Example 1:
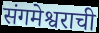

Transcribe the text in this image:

संगमेश्वराची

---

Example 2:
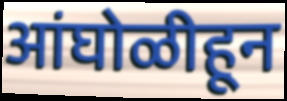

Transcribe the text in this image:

आंघोळीहून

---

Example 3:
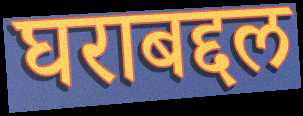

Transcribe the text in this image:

घराबद्दल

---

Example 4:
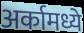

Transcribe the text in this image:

अर्कामध्ये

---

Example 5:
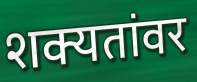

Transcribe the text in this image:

शक्यतांवर